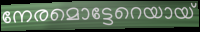
നേരമൊട്ടേറെയായ്